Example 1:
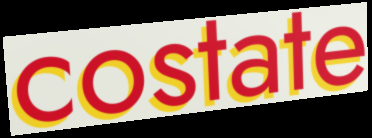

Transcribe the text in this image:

costate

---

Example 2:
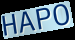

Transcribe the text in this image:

HAPO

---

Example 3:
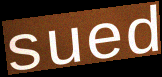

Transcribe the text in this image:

sued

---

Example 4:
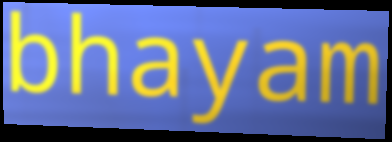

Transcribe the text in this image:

bhayam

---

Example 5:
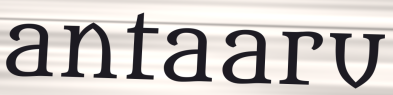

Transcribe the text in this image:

antaaru